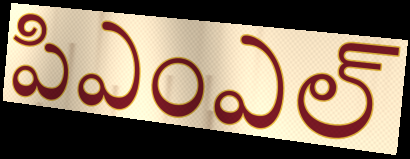
పిఎంఎల్